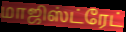
மாஜிஸ்ட்ரேட்